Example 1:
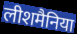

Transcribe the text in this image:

लीशमैनिया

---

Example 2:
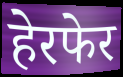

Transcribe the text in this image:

हेरफेर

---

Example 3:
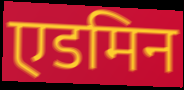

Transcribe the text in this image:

एडमिन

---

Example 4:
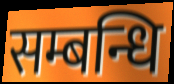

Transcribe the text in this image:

सम्बन्धि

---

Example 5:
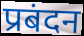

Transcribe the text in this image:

प्रबंदन